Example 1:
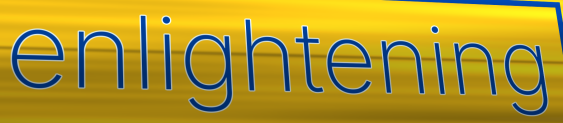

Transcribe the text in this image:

enlightening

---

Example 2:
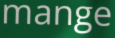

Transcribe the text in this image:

mange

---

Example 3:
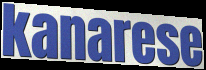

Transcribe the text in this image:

kanarese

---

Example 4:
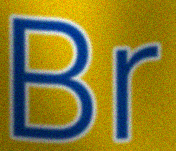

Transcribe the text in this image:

Br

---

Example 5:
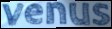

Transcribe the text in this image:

venus